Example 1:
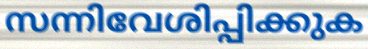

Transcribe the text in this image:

സന്നിവേശിപ്പിക്കുക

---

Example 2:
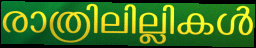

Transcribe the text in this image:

രാത്രിലില്ലികൾ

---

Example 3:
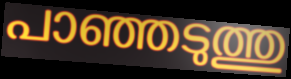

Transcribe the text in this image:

പാഞ്ഞടുത്തു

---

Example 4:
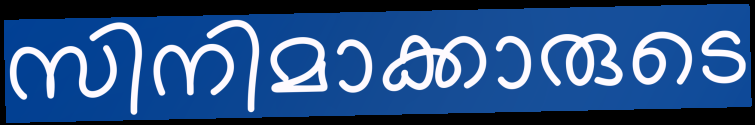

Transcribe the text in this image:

സിനിമാക്കാരുടെ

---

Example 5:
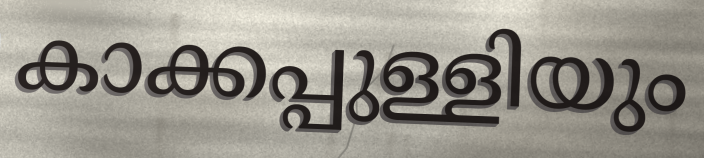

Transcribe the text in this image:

കാക്കപ്പുള്ളിയും